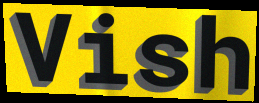
Vish